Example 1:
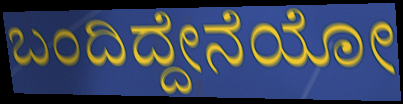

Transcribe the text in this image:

ಬಂದಿದ್ದೇನೆಯೋ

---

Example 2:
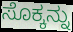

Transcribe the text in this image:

ಸೊಕ್ಕನ್ನು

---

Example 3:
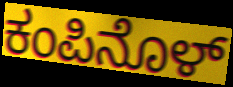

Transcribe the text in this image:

ಕಂಪಿನೊಳ್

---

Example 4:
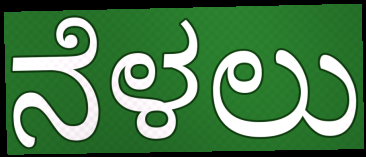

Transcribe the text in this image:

ನೆಳಲು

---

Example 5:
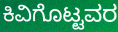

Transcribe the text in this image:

ಕಿವಿಗೊಟ್ಟವರ